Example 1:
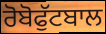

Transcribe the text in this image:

ਰੋਬੋਫੁੱਟਬਾਲ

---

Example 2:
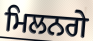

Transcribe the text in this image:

ਮਿਲਨਗੇ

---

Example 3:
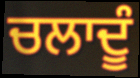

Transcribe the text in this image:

ਚਲਾਦੂੰ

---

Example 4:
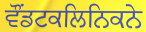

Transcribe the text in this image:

ਵੌਂਡਟਕਲਿਨਿਕਨੇ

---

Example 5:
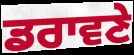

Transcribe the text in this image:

ਡਰਾਵਣੇ